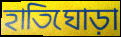
হাতিঘোড়া